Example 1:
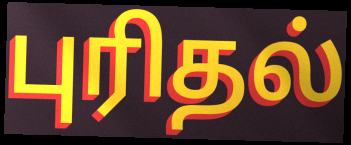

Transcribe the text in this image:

புரிதல்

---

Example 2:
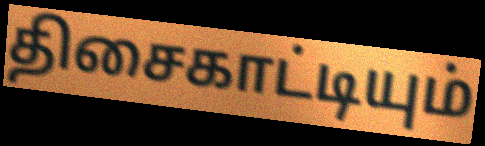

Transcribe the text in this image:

திசைகாட்டியும்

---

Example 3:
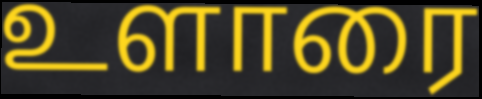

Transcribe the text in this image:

உளாரை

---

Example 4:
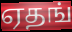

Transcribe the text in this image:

ஏதங்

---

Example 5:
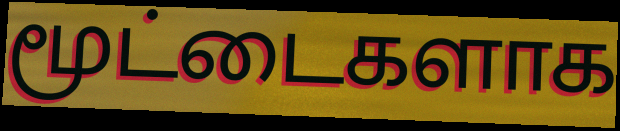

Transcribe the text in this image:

மூட்டைகளாக